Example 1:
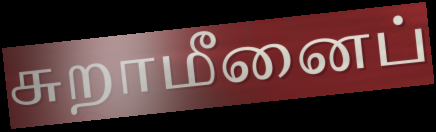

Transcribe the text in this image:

சுறாமீனைப்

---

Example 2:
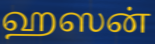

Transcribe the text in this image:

ஹஸன்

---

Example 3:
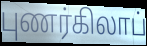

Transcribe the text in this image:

புணர்கிலாப்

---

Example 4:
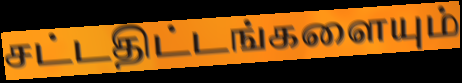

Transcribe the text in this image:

சட்டதிட்டங்களையும்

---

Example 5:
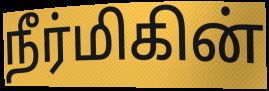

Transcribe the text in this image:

நீர்மிகின்